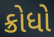
ક્રોધો